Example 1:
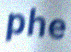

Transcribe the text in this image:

phe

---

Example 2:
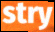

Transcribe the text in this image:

stry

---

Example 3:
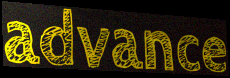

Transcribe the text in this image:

advance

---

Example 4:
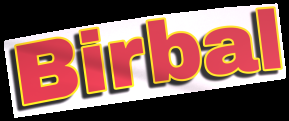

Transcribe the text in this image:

Birbal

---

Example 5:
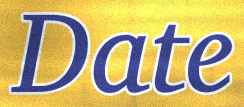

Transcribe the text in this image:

Date